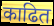
काढित